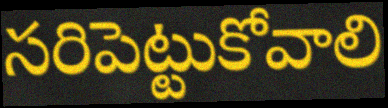
సరిపెట్టుకోవాలి